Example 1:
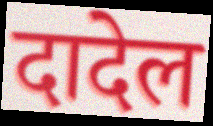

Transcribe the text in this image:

दादेल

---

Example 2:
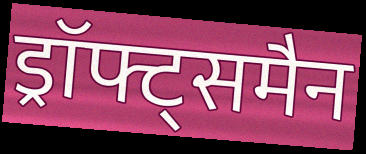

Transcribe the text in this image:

ड्रॉफ्ट्समैन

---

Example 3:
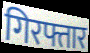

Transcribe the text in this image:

गिरफ्तार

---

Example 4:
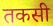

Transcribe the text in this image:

तकसी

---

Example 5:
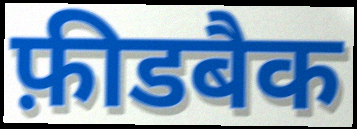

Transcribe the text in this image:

फ़ीडबैक